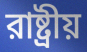
রাষ্ট্রীয়